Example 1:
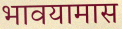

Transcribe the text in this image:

भावयामास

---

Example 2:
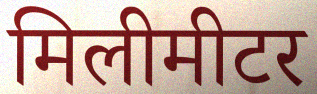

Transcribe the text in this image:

मिलीमीटर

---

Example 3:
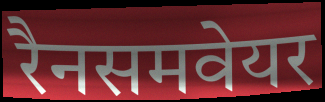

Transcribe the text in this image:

रैनसमवेयर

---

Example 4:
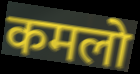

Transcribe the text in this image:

कमलो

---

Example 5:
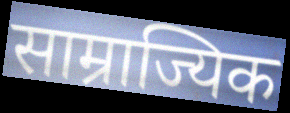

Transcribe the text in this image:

साम्राज्यिक